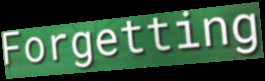
Forgetting